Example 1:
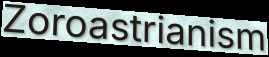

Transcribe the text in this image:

Zoroastrianism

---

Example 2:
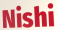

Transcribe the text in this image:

Nishi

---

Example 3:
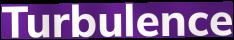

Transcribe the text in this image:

Turbulence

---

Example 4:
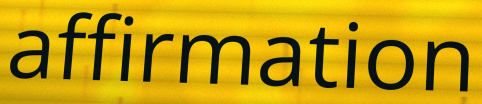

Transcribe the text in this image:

affirmation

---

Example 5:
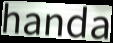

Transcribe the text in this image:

handa